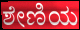
ಶೇಣಿಯ